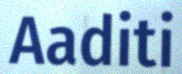
Aaditi